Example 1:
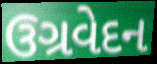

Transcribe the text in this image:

ઉગ્રવેદન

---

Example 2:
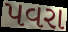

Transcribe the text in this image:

પવરા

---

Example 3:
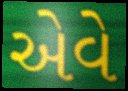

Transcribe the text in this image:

એવે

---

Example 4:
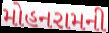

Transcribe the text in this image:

મોહનરામની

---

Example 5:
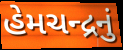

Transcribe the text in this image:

હેમચન્દ્રનું